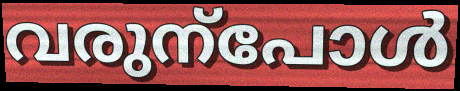
വരുന്പോൾ